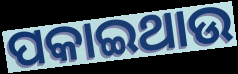
ପକାଇଥାଉ